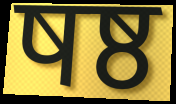
षष्ठ